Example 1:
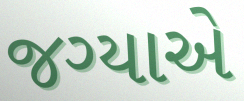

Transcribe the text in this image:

જગ્યાએ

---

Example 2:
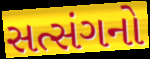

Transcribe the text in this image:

સત્સંગનો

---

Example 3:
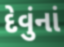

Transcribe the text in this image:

દેવુંનાં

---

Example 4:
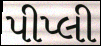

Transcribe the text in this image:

પીપ્લી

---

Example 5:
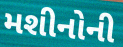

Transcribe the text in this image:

મશીનોની